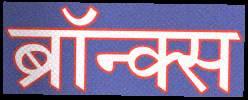
ब्रॉन्क्स